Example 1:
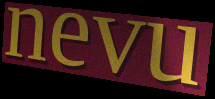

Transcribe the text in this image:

nevu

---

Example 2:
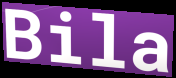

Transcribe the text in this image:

Bila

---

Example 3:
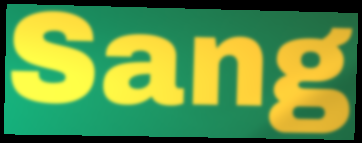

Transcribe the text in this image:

Sang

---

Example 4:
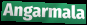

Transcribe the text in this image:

Angarmala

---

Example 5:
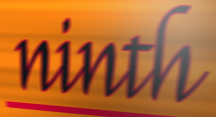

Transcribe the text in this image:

ninth